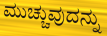
ಮುಚ್ಚುವುದನ್ನು